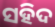
ସହିଦ